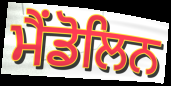
ਮੈਂਡੋਲਿਨ